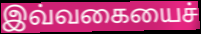
இவ்வகையைச்